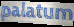
palatum